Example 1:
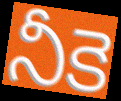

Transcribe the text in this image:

నీకె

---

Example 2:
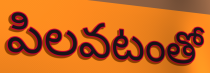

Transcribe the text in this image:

పిలవటంతో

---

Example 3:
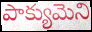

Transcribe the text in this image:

పాక్యుమెని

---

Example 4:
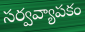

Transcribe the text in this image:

సర్వవ్యాపకం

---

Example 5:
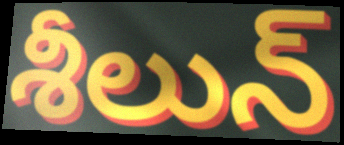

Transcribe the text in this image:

శీలున్